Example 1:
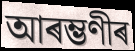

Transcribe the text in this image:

আৰম্ভণীৰ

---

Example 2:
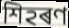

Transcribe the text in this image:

শিহৰণ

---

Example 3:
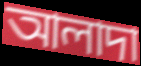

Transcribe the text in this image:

আলাদা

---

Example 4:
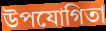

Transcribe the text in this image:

উপযোগিতা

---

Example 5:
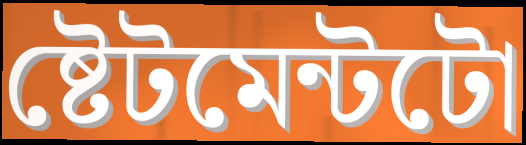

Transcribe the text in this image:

ষ্টেটমেন্টটো